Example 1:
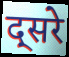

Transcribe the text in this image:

द्सरे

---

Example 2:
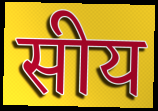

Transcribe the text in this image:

सीय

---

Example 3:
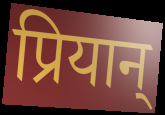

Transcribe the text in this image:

प्रियान्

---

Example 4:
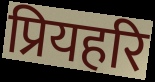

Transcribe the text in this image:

प्रियहरि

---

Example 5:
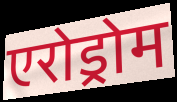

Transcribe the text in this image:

एरोड्रोम